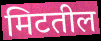
मिटतील